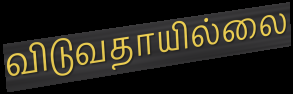
விடுவதாயில்லை